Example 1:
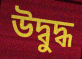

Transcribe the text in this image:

উদ্বুদ্ধ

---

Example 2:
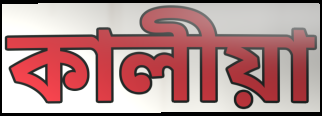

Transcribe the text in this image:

কালীয়া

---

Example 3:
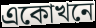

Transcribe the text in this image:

একোখনে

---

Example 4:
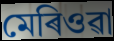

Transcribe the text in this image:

মেৰিওৱা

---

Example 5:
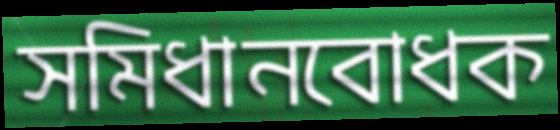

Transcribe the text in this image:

সমিধানবোধক